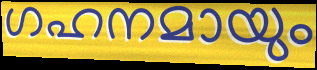
ഗഹനമായും